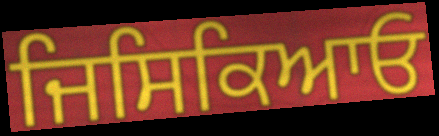
ਜਿਸਿਕਿਆਓ